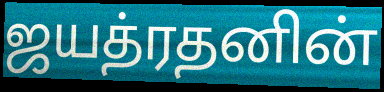
ஜயத்ரதனின்